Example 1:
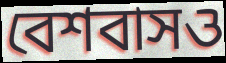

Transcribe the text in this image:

বেশবাসও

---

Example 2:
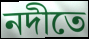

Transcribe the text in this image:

নদীতে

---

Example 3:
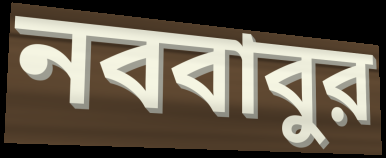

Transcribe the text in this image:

নববাবুর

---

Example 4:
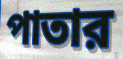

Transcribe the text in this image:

পাতার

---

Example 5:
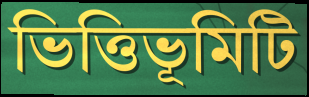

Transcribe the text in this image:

ভিত্তিভূমিটি